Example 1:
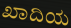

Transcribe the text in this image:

ಖಾದಿಯ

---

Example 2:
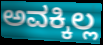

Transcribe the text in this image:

ಅವಕ್ಕಿಲ್ಲ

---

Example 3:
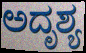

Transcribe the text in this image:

ಅದೃಶ್ಯ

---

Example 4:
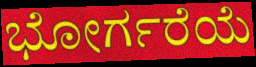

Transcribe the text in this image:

ಭೋರ್ಗರೆಯೆ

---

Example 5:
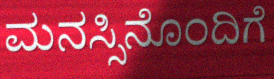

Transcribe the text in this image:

ಮನಸ್ಸಿನೊಂದಿಗೆ